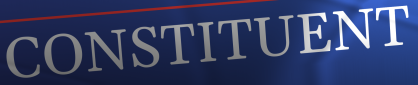
CONSTITUENT